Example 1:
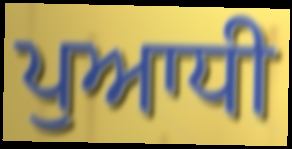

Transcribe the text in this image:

ਪੁਆਧੀ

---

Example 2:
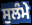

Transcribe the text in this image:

ਸੁਲੰਮੇ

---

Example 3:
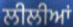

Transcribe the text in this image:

ਲੀਲੀਆਂ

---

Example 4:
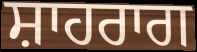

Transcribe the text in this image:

ਸ਼ਾਹਰਾਗ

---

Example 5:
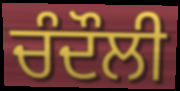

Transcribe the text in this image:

ਚੰਦੌਲੀ